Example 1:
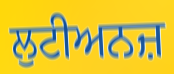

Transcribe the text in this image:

ਲੁਟੀਅਨਜ਼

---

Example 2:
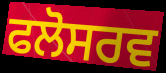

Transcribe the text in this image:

ਫਲੋਸਰਵ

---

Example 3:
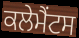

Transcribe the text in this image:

ਕਲੇਮੈਂਟਸ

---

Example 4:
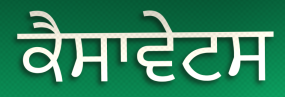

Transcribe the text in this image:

ਕੈਸਾਵੇਟਸ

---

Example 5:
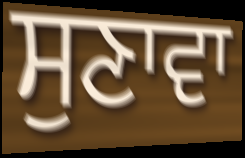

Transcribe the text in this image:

ਸੁਣਾਵਾ